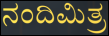
ನಂದಿಮಿತ್ರ